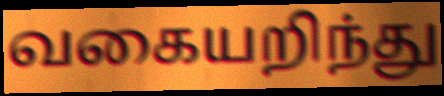
வகையறிந்து